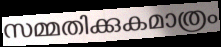
സമ്മതിക്കുകമാത്രം